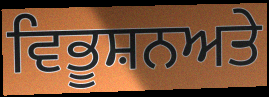
ਵਿਭੂਸ਼ਨਅਤੇ